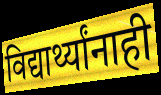
विद्यार्थ्यांनाही